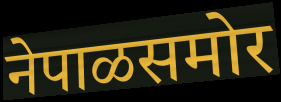
नेपाळसमोर